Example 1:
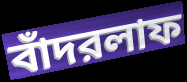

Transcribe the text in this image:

বাঁদরলাফ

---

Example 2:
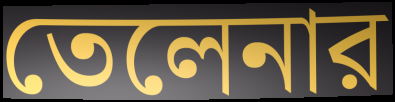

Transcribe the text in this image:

তেলেনার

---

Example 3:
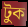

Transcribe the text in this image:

টুক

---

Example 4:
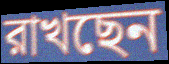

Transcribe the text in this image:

রাখছেন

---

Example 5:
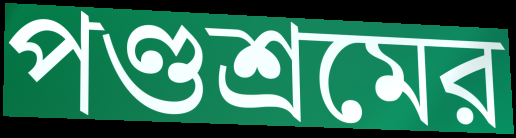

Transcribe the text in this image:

পণ্ডশ্রমের